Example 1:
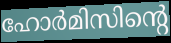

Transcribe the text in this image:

ഹോർമിസിന്റെ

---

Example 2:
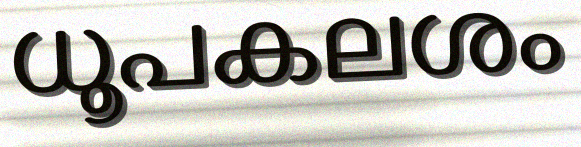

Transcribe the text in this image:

ധൂപകലശം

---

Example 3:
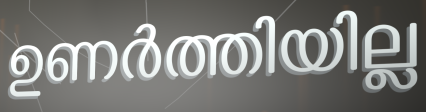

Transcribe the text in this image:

ഉണർത്തിയില്ല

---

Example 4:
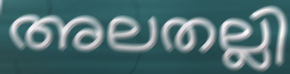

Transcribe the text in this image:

അലതല്ലി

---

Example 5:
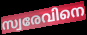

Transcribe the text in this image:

സ്വരേവിനെ